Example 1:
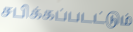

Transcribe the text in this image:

சபிக்கப்படட்டும்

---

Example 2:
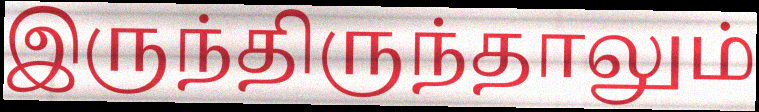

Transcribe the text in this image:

இருந்திருந்தாலும்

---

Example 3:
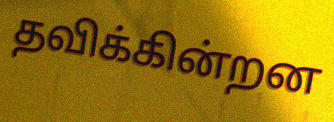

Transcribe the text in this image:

தவிக்கின்றன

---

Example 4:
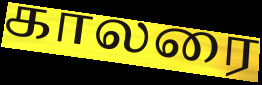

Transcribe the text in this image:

காலரை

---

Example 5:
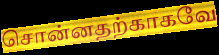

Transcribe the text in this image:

சொன்னதற்காகவே